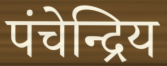
पंचेन्द्रिय